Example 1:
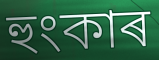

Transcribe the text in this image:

হুংকাৰ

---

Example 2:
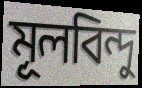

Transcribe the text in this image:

মূলবিন্দু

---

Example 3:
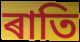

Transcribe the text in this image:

ৰাতি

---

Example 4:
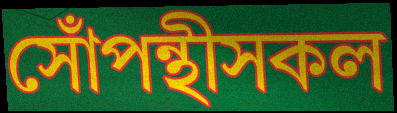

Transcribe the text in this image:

সোঁপন্থীসকল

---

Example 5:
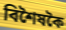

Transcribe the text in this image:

বিশৈষকৈ